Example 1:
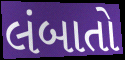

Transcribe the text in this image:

લંબાતો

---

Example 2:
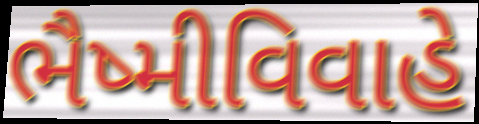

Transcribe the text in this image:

ભૈષ્મીવિવાહે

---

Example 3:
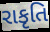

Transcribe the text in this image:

રાકૃતિ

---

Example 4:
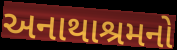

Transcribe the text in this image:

અનાથાશ્રમનો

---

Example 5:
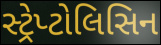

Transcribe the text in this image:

સ્ટ્રેપ્ટોલિસિન